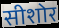
सीशोर